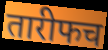
तारीफच